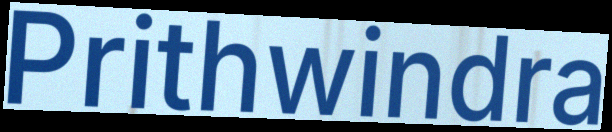
Prithwindra